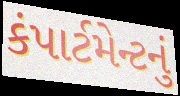
કંપાર્ટમેન્ટનું